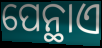
ପେନ୍ଥାଏ